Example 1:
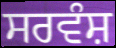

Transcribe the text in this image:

ਸਰਵੰਸ਼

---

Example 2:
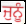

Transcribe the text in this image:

ਜੁਨੂੰ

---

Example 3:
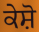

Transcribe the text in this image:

ਕੇਸ਼ੋ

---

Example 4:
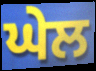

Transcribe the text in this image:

ਘੇਲ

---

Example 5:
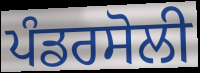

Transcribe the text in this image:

ਪੰਡਰਸੋਲੀ